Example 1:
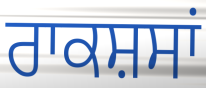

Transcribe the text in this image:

ਰਾਕਸ਼ਸਾਂ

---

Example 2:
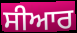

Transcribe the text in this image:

ਸੀਆਰ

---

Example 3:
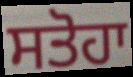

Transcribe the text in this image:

ਸਤੋਹਾ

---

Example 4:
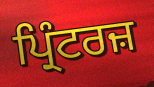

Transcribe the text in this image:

ਪ੍ਰਿੰਟਰਜ਼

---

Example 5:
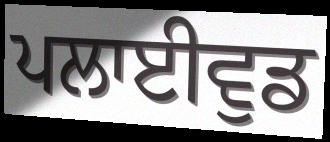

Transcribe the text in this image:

ਪਲਾਈਵੁਡ